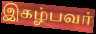
இகழ்பவர்